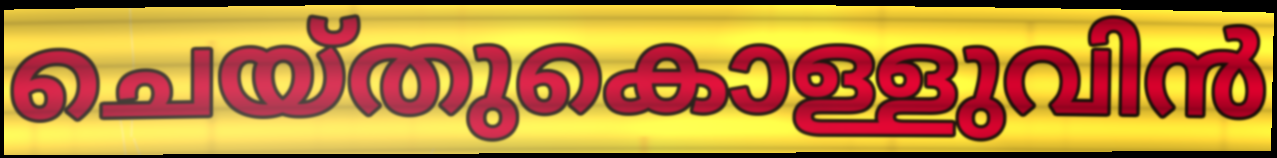
ചെയ്തുകൊള്ളുവിൻ